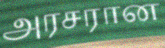
அரசரான